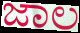
ಜಾಲ